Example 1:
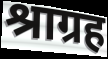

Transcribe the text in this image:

श्राग्रह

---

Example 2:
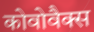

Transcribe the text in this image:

कोवोवैक्स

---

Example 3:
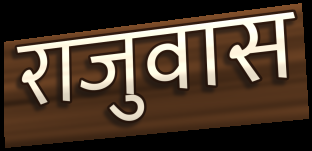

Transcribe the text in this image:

राजुवास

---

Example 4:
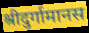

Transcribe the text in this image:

श्रीदुर्गामानस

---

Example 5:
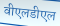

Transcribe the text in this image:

वीएलडीएल